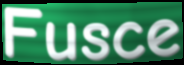
Fusce